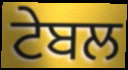
ਟੇਬਲ